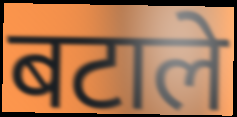
बटाले